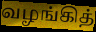
வழங்கித்